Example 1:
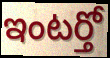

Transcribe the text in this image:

ఇంటర్తో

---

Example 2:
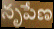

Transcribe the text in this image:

నృపేణ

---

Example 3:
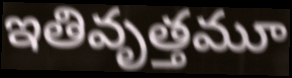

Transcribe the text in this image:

ఇతివృత్తమూ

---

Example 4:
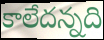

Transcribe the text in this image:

కాలేదన్నది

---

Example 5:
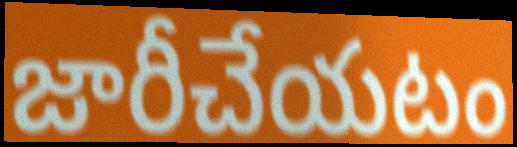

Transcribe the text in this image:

జారీచేయటం